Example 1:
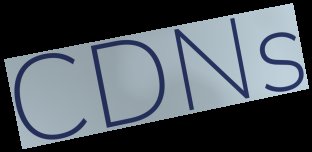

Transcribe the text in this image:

CDNs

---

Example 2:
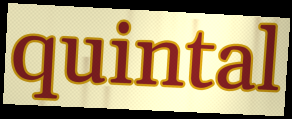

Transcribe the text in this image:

quintal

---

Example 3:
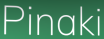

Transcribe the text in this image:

Pinaki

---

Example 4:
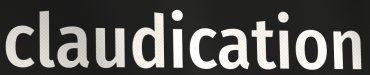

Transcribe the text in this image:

claudication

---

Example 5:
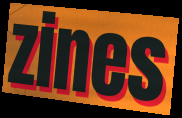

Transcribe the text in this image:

zines